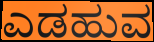
ಎಡಹುವ